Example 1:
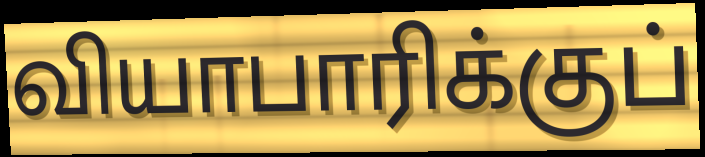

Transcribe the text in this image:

வியாபாரிக்குப்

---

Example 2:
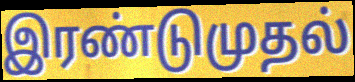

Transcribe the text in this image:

இரண்டுமுதல்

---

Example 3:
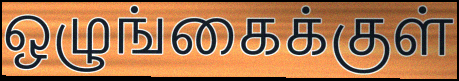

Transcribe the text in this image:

ஒழுங்கைக்குள்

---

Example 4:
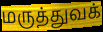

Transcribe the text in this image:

மருத்துவக்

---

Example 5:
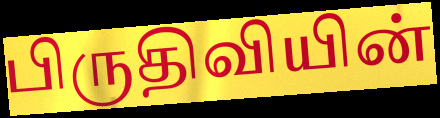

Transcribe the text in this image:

பிருதிவியின்